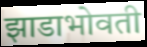
झाडाभोवती